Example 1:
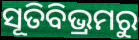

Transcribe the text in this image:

ସୂତିବିଭ୍ରମରୁ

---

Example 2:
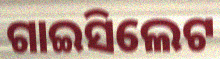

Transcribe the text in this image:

ଗାଇସିଲେଟ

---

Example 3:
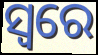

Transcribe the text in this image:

ସ୍ୱରେ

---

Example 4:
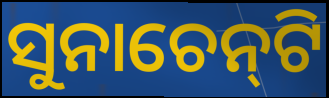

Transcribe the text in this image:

ସୁନାଚେନ୍‍ଟି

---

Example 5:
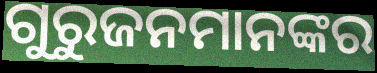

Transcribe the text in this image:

ଗୁରୁଜନମାନଙ୍କର